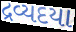
દ્રવ્યદયા